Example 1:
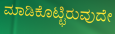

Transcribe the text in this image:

ಮಾಡಿಕೊಟ್ಟಿರುವುದೇ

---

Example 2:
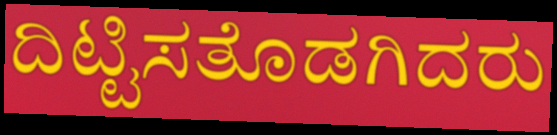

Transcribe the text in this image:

ದಿಟ್ಟಿಸತೊಡಗಿದರು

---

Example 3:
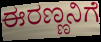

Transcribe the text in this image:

ಈರಣ್ಣನಿಗೆ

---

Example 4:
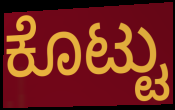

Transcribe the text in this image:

ಕೊಟ್ಟು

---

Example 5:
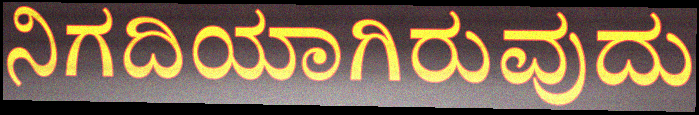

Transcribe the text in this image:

ನಿಗದಿಯಾಗಿರುವುದು